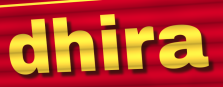
dhira